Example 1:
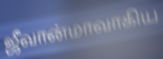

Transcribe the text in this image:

ஜீவான்மாவாகிய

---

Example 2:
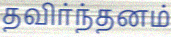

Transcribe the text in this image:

தவிர்ந்தனம்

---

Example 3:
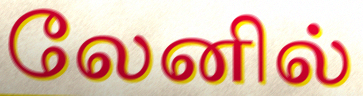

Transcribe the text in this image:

லேனில்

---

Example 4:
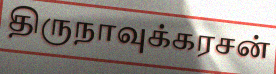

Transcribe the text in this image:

திருநாவுக்கரசன்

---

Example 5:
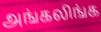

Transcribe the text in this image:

அங்கலிங்க